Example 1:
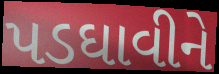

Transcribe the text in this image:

પડઘાવીને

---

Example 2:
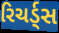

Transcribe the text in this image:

રિચર્ડ્સ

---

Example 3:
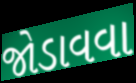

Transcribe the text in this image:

જોડાવવા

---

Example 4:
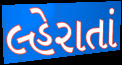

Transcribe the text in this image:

લ્હેરાતાં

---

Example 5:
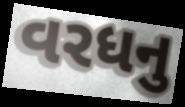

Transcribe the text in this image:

વરધનુ